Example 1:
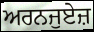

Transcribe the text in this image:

ਅਰਨਜੁਏਜ਼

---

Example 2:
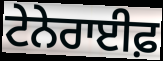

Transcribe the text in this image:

ਟੇਨੇਰਾਈਫ਼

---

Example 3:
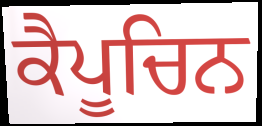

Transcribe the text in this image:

ਕੈਪੂਚਿਨ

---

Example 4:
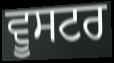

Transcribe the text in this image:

ਵੂਸਟਰ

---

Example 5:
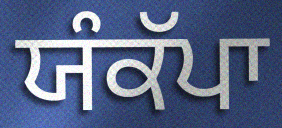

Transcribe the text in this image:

ਯੰਕੱਪਾ